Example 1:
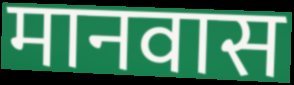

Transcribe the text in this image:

मानवास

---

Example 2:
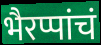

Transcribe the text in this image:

भैरप्पांचं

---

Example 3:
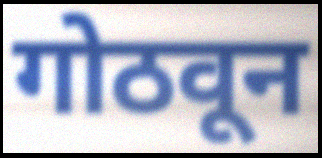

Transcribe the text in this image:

गोठवून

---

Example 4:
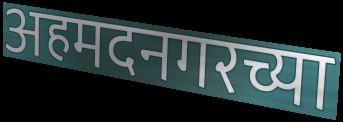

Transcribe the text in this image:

अहमदनगरच्या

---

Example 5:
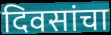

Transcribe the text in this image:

दिवसांचा